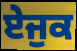
ਏਜੁਕ